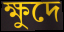
ক্ষুদে